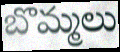
బొమ్మలు